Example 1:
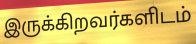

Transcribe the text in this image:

இருக்கிறவர்களிடம்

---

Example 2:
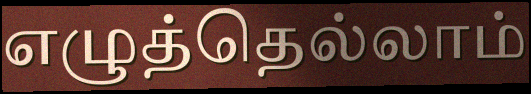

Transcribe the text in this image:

எழுத்தெல்லாம்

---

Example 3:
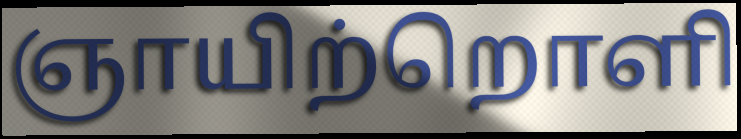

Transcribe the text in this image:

ஞாயிற்றொளி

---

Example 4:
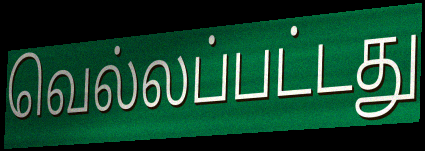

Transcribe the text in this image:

வெல்லப்பட்டது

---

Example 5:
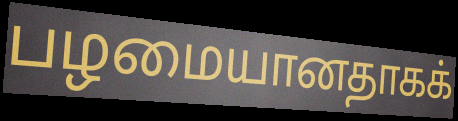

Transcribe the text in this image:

பழமையானதாகக்